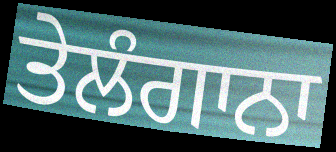
ਤੇਲੰਗਾਨਾ